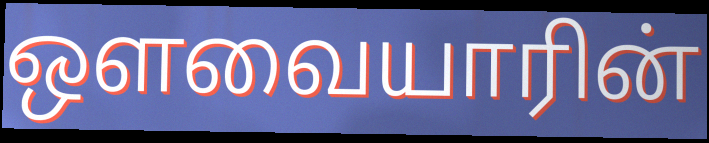
ஔவையாரின்